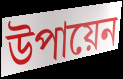
উপায়েন